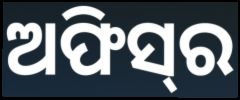
ଅଫିସ୍‌ର